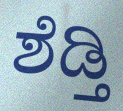
ಶೆಡ್ತಿ